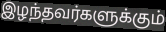
இழந்தவர்களுக்கும்